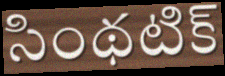
సింథటిక్